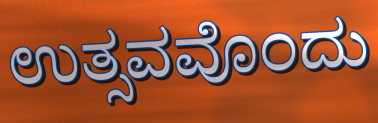
ಉತ್ಸವವೊಂದು